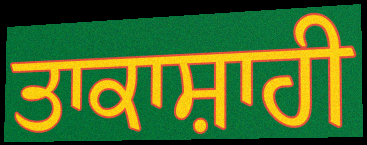
ਤਾਕਾਸ਼ਾਹੀ